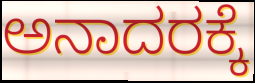
ಅನಾದರಕ್ಕೆ